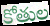
కోతుల